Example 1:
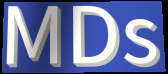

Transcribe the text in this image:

MDs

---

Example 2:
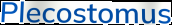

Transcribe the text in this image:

Plecostomus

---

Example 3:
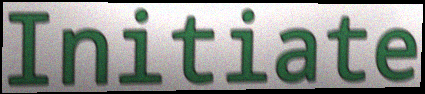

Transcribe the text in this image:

Initiate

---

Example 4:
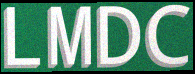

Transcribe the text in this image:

LMDC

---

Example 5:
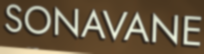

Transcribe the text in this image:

SONAVANE